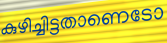
കുഴിച്ചിട്ടതാണെടോ